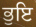
ਭੁਇ